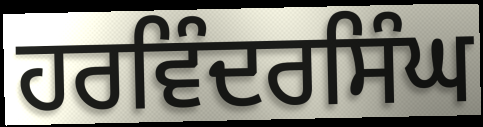
ਹਰਵਿੰਦਰਸਿੰਘ